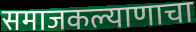
समाजकल्याणाचा